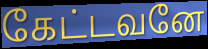
கேட்டவனே